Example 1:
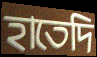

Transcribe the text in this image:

হাতেদি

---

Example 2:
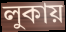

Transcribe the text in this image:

লুকায়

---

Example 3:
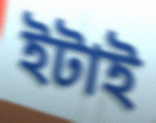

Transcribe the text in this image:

ইটাই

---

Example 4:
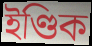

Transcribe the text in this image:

ইণ্ডিক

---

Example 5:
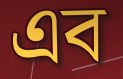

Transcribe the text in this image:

এব